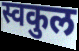
स्वकुल